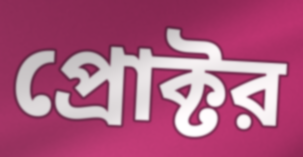
প্রোক্টর